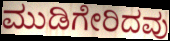
ಮುಡಿಗೇರಿದವು